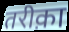
तरीक़ा